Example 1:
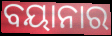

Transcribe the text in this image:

ବୟାନାର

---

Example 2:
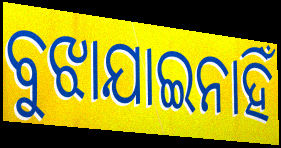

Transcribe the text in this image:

ବୁଝାଯାଇନାହିଁ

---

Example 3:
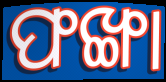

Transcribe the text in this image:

ଫଙ୍ଖା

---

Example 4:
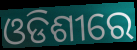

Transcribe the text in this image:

ଓଡିଶୀରେ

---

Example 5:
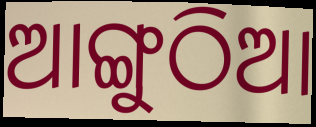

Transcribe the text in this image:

ଆଙ୍ଗୁଠିଆ